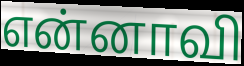
என்னாவி